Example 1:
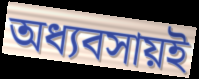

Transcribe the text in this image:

অধ্যবসায়ই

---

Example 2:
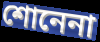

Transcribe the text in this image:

শোনেনা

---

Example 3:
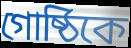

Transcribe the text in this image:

গোষ্ঠিকে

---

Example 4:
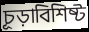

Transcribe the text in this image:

চূড়াবিশিষ্ট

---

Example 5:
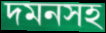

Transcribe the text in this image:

দমনসহ